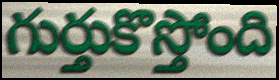
గుర్తుకొస్తోంది